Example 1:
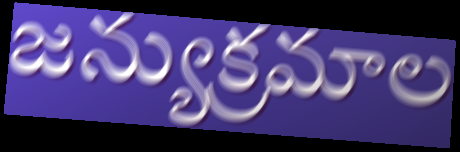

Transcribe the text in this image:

జన్యుక్రమాల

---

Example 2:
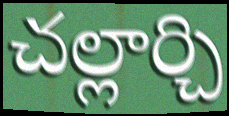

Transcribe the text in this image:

చల్లార్చి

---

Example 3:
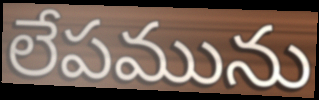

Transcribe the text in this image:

లేపమును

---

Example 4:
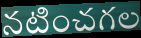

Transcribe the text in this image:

నటించగల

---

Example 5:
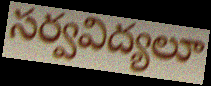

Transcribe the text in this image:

సర్వవిద్యలూ